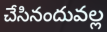
చేసినందువల్ల